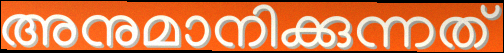
അനുമാനിക്കുന്നത്